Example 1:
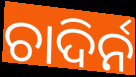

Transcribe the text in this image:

ଚାଦିର୍ନ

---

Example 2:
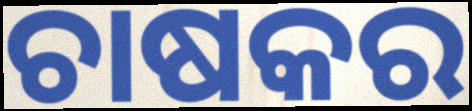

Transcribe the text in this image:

ଚାଷକର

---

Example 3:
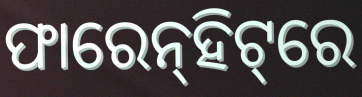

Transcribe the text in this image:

ଫାରେନ୍‌ହିଟ୍‌ରେ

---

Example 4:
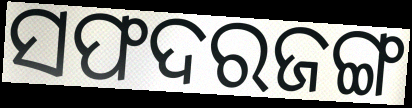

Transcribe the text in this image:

ସଫଦରଜଙ୍ଗ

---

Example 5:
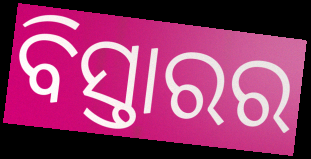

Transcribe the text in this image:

ବିସ୍ତାରର